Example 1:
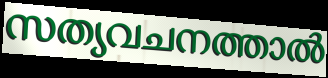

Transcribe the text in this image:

സത്യവചനത്താൽ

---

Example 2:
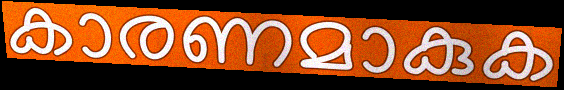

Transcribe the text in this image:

കാരണമാകുക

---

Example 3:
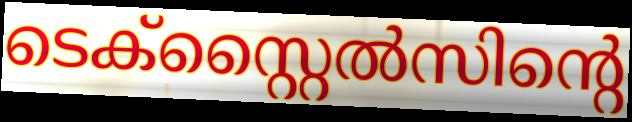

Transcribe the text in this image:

ടെക്സ്റ്റൈൽസിന്റെ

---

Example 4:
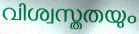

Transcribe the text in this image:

വിശ്വസ്തതയും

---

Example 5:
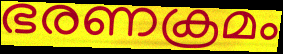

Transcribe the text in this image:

ഭരണക്രമം